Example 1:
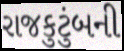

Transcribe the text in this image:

રાજકુટુંબની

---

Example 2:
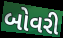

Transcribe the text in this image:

બોવરી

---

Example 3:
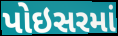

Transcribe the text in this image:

પોઇસરમાં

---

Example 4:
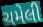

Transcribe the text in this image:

ચમેલી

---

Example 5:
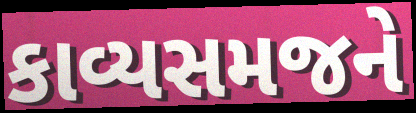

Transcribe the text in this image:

કાવ્યસમજને